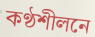
কণ্ঠশীলনে